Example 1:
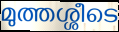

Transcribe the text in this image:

മുത്തശ്ശീടെ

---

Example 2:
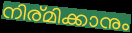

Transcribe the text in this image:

നിര്മിക്കാനും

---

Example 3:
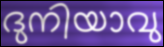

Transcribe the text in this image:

ദുനിയാവു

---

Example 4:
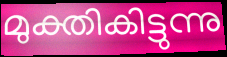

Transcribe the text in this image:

മുക്തികിട്ടുന്നു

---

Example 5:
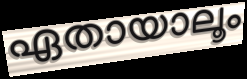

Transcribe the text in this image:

ഏതായാലൂം